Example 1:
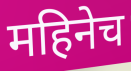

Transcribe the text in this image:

महिनेच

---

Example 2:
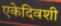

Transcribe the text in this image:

एकेदिवशी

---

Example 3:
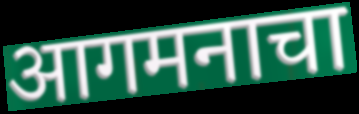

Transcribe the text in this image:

आगमनाचा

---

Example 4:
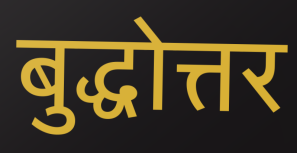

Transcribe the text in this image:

बुद्धोत्तर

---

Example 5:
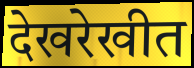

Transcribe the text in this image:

देखरेखीत